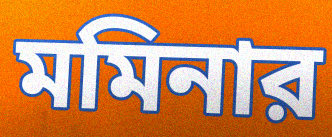
মমিনার